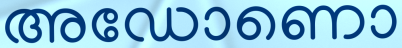
അഡോണൊ